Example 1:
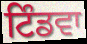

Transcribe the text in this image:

ਟਿੰਡਵਾ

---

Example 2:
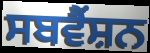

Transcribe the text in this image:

ਸਬਵੈਂਸ਼ਨ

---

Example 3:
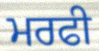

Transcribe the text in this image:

ਮਰਫੀ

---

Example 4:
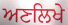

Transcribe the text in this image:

ਅਣਲਿਖੇ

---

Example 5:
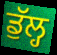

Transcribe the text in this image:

ਡੁੱਲ੍ਹ